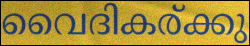
വൈദികര്ക്കു